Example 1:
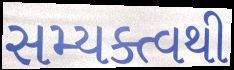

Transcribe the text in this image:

સમ્યક્ત્વથી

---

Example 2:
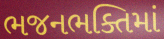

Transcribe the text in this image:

ભજનભક્તિમાં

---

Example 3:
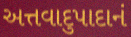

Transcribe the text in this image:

અત્તવાદુપાદાનં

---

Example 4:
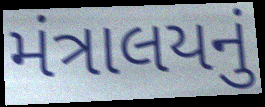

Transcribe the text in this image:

મંત્રાલયનું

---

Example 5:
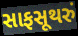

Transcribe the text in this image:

સાફસૂથરું